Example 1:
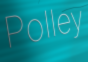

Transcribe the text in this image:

Polley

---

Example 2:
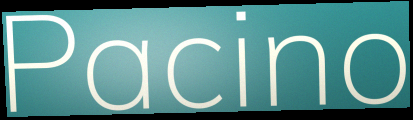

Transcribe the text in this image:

Pacino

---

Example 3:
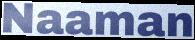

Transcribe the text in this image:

Naaman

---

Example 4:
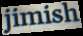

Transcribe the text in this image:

jimish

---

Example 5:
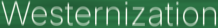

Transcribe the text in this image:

Westernization